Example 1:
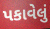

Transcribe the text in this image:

પકાવેલું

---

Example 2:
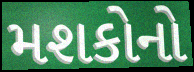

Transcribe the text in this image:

મશકોનો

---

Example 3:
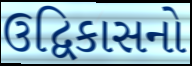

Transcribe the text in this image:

ઉદ્વિકાસનો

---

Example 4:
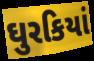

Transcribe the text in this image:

ઘુરકિયાં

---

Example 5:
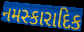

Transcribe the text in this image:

નમસ્કારાદિક